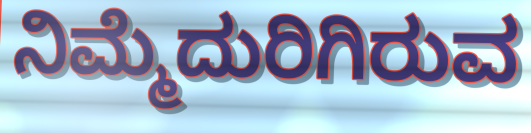
ನಿಮ್ಮೆದುರಿಗಿರುವ